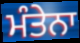
ਮੰਤੇਨਾ